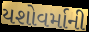
યશોવર્માની